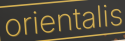
orientalis